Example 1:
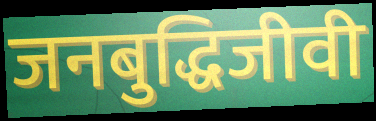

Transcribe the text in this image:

जनबुद्धिजीवी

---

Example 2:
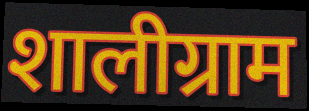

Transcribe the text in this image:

शालीग्राम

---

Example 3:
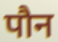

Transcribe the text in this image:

पौन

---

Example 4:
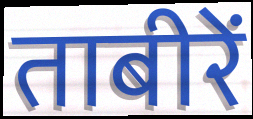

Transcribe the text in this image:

ताबीरें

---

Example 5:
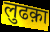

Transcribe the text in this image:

लुढक़ा